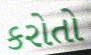
કરોતો